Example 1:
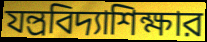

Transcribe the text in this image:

যন্ত্রবিদ্যাশিক্ষার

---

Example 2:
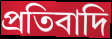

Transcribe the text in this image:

প্রতিবাদি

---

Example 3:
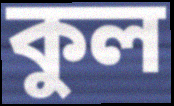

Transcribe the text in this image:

কুল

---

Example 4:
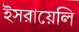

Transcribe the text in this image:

ইসরায়েলি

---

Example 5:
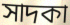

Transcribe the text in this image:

সাদকা